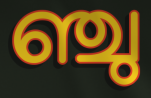
ഞ്ചു